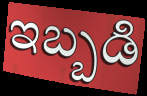
ఇబ్బడి